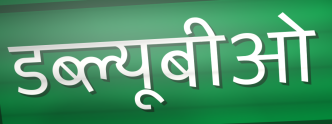
डब्ल्यूबीओ